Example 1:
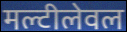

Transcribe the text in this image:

मल्टीलेवल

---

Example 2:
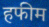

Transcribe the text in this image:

हफीम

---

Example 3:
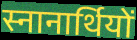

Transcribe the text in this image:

स्नानार्थियों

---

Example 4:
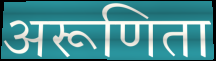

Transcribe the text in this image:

अरूणिता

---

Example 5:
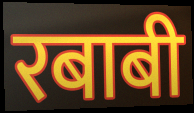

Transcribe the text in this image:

रबाबी